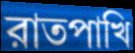
রাতপাখি